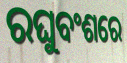
ରଘୁବଂଶରେ